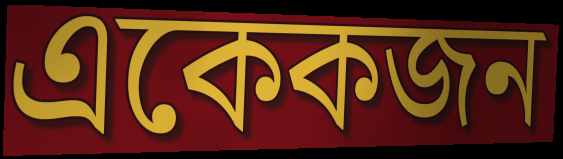
একেকজন